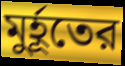
মুর্হূতের